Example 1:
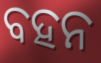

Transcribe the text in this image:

ବହନ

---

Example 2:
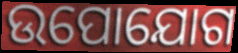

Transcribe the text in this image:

ଉପୋଯୋଗ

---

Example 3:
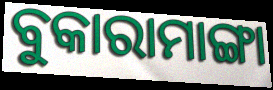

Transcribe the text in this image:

ବୁକାରାମାଙ୍ଗା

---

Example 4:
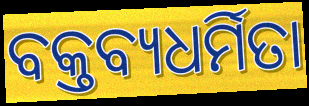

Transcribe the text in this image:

ବକ୍ତବ୍ୟଧର୍ମିତା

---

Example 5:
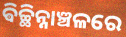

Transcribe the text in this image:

ଵିଚ୍ଛିନ୍ନାଞ୍ଚଳରେ